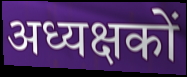
अध्यक्षकों